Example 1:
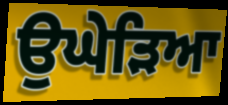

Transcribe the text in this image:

ਉਘੇੜਿਆ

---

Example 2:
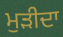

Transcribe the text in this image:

ਮੁੜੀਦਾ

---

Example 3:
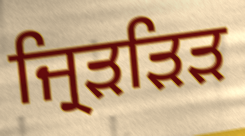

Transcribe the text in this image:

ਜ੍ਰਿੜੜਿੜ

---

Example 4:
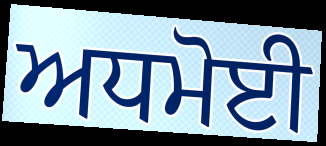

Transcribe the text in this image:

ਅਧਮੋਈ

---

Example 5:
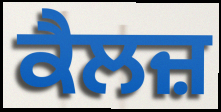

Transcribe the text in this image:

ਕੈਲਜ਼